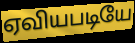
ஏவியபடியே